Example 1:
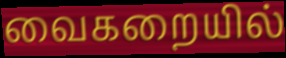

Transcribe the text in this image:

வைகறையில்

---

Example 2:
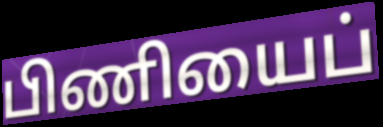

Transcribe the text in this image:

பிணியைப்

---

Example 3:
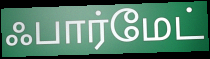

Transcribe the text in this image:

ஃபார்மேட்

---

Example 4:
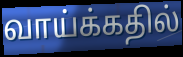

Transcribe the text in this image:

வாய்க்கதில்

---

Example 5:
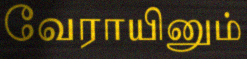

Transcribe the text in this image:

வேராயினும்